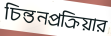
চিন্তনপ্রক্রিয়ার